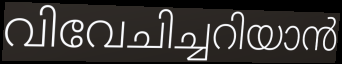
വിവേചിച്ചറിയാൻ